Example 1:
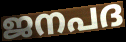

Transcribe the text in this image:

ജനപദ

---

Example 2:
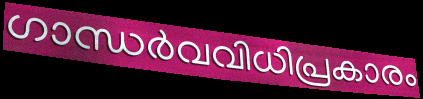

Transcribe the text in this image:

ഗാന്ധർവവിധിപ്രകാരം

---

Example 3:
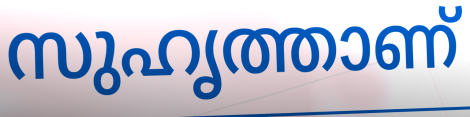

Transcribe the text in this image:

സുഹൃത്താണ്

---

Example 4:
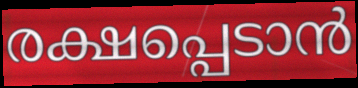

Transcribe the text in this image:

രക്ഷപ്പെടാൻ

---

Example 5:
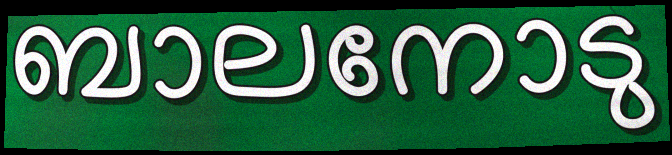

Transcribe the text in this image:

ബാലനോടു